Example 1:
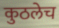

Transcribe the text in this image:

कुठलेच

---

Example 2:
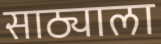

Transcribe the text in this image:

साठ्याला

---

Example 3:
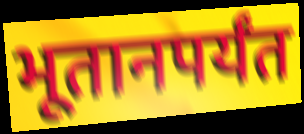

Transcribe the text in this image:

भूतानपर्यंत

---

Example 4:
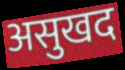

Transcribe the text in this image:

असुखद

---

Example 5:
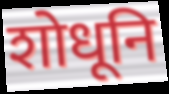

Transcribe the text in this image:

शोधूनि